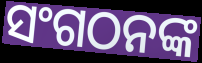
ସଂଗଠନଙ୍କ